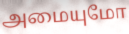
அமையுமோ